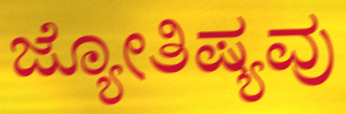
ಜ್ಯೋತಿಷ್ಯವು